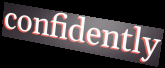
confidently